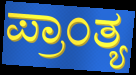
ಪ್ರಾಂತ್ಯ